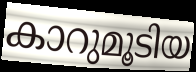
കാറുമൂടിയ